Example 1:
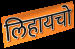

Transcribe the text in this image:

लिहायचो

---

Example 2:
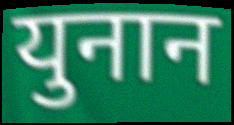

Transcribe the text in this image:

युनान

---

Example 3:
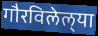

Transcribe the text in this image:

गौरविलेल्या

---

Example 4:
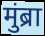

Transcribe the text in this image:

मुंब्रा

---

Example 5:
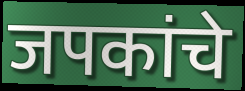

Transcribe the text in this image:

जपकांचे